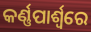
କର୍ଣ୍ଣପାର୍ଶ୍ୱରେ